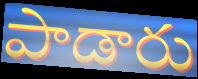
పాడారు